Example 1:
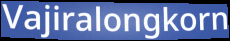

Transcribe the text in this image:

Vajiralongkorn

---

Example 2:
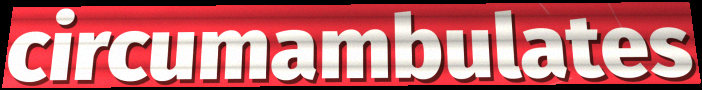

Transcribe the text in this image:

circumambulates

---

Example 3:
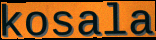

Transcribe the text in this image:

kosala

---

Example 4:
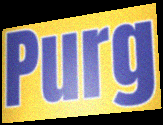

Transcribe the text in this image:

Purg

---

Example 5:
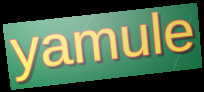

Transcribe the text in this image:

yamule